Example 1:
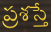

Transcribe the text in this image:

ప్రశస్తే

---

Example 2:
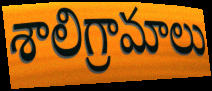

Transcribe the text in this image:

శాలిగ్రామాలు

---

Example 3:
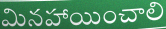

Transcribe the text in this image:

మినహాయించాలి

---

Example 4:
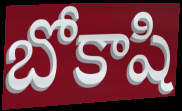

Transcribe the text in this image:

బోకాషి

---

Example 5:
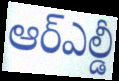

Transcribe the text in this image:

ఆర్ఎల్డీ